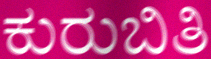
ಕುರುಬಿತಿ